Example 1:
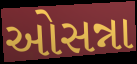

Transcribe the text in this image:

ઓસન્ના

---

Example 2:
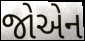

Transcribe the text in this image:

જોએન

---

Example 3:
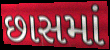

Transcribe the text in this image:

છાસમાં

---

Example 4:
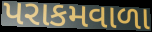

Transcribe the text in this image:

પરાકમવાળા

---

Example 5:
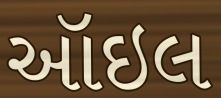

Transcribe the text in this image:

ઑઇલ